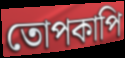
তোপকাপি